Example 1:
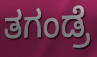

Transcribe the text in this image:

ತಗಂಡ್ರೆ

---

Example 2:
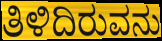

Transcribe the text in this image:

ತಿಳಿದಿರುವನು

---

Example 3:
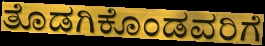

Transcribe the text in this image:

ತೊಡಗಿಕೊಂಡವರಿಗೆ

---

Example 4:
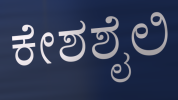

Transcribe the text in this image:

ಕೇಶಶೈಲಿ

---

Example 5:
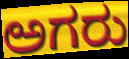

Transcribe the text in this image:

ಅಗರು